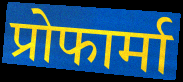
प्रोफार्मा